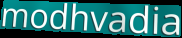
modhvadia